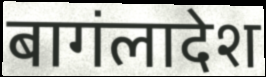
बागंलादेश